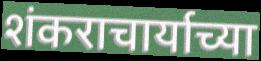
शंकराचार्याच्या